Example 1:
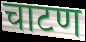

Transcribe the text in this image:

चाटण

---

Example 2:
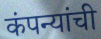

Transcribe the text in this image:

कंपन्यांची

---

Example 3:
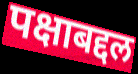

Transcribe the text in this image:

पक्षाबद्दल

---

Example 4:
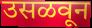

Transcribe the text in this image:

उसळवून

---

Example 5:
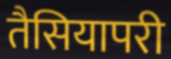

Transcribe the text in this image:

तैसियापरी